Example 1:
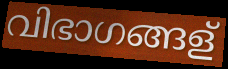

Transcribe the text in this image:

വിഭാഗങ്ങള്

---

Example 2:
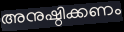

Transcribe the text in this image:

അനുഷ്ഠിക്കണം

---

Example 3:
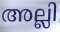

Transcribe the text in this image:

അല്ലി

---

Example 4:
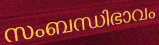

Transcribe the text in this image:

സംബന്ധിഭാവം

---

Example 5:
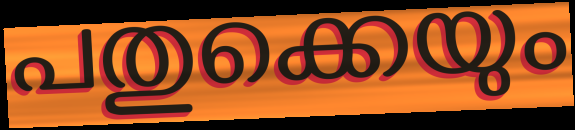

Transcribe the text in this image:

പതുക്കെയും